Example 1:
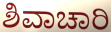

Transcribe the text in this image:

ಶಿವಾಚಾರಿ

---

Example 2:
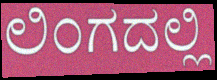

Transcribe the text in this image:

ಲಿಂಗದಲ್ಲಿ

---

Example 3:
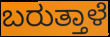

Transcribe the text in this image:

ಬರುತ್ತಾಳೆ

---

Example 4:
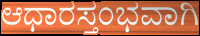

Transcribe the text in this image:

ಆಧಾರಸ್ತಂಭವಾಗಿ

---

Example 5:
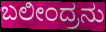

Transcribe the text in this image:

ಬಲೀಂದ್ರನು